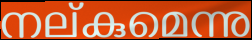
നല്‌കുമെന്നു